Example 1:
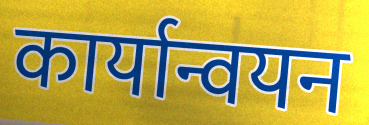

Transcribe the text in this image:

कार्यान्‍वयन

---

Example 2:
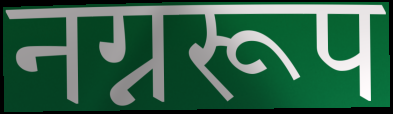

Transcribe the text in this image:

नग्नरूप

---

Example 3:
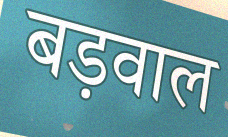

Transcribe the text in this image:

बड़वाल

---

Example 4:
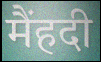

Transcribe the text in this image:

मैंहदी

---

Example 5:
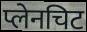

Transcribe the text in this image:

प्लेनचिट